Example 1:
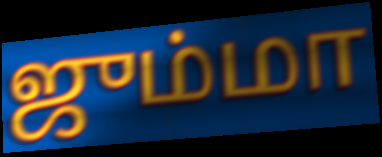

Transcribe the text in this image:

ஜும்மா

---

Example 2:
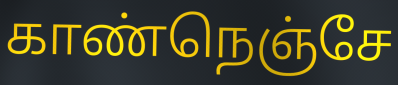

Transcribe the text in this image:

காண்நெஞ்சே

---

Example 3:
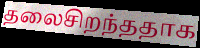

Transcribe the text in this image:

தலைசிறந்ததாக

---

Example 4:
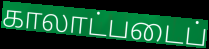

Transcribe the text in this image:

காலாட்படைப்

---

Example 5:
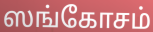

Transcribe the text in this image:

ஸங்கோசம்